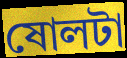
ষোলটা